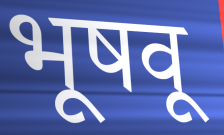
भूषवू